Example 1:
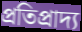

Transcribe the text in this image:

প্ৰতিপ্ৰাদ্য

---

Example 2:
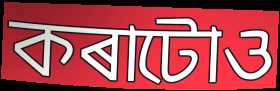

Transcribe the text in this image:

কৰাটোও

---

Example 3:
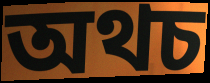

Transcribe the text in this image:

অথচ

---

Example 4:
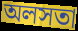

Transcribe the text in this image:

অলসতা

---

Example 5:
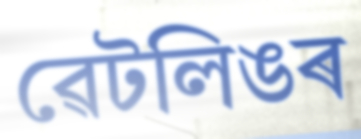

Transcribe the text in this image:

ৱেটলিঙৰ